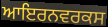
ਆਇਰਨਵਰਕਸ